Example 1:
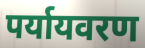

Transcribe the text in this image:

पर्यायवरण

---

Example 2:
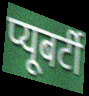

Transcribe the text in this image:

प्यूबर्टी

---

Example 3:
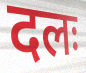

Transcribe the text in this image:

दलः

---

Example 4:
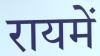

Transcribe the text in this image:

रायमें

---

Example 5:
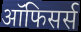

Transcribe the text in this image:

ऑफिसर्स